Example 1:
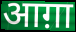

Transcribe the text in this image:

आग़ा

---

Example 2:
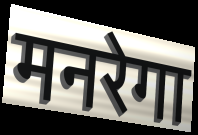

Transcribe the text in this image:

मनरेगा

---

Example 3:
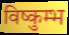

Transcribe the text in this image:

विष्कुम्भ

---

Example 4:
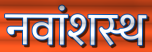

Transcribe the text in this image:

नवांशस्थ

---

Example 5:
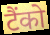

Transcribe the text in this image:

टैंको